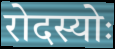
रोदस्योः